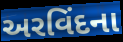
અરવિંદના